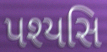
પશ્યસિ